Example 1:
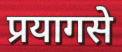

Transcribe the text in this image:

प्रयागसे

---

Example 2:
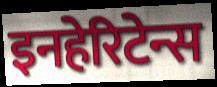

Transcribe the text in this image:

इनहेरिटेन्स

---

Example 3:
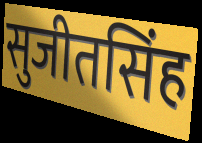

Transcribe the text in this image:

सुजीतसिंह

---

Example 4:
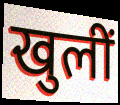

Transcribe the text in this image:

खुलीं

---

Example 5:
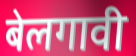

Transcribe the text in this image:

बेलगावी